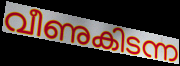
വീണുകിടന്ന